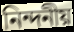
নিন্দনীয়